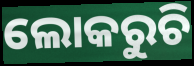
ଲୋକରୁଚି